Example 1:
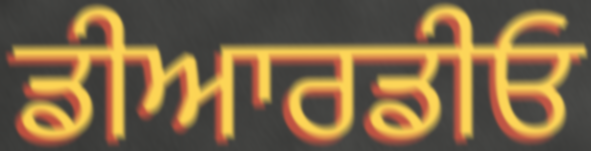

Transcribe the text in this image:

ਡੀਆਰਡੀਓ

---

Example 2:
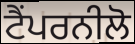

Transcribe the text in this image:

ਟੈਂਪਰਨੀਲੋ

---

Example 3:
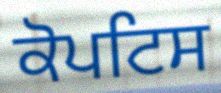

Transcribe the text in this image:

ਕੋਪਟਿਸ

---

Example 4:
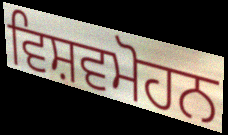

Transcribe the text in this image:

ਵਿਸ਼ਵਮੋਹਨ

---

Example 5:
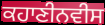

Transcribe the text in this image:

ਕਹਾਣੀਨਵੀਸ